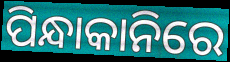
ପିନ୍ଧାକାନିରେ